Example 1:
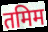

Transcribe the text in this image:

तमिम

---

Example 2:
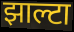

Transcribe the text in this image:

झाल्टा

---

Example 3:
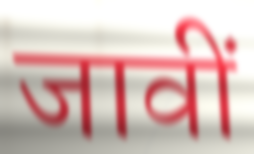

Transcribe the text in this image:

जावीं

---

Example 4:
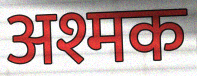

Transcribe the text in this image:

अश्मक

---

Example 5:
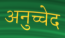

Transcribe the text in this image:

अनुच्चेद